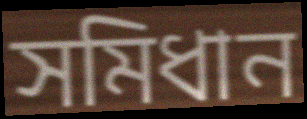
সমিধান